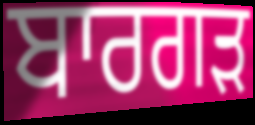
ਬਾਰਗੜ